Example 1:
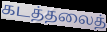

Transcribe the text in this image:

கடத்தலைத்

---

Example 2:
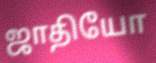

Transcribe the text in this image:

ஜாதியோ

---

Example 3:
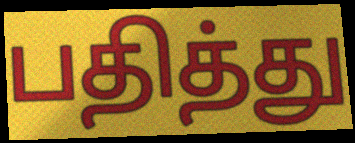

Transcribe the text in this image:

பதித்து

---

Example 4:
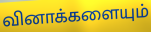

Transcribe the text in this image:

வினாக்களையும்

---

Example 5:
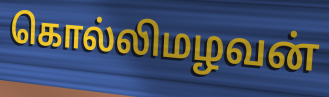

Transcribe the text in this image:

கொல்லிமழவன்